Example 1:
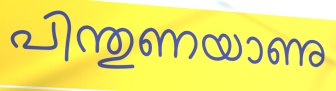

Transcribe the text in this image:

പിന്തുണയാണു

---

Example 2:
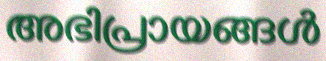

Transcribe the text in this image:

അഭിപ്രായങ്ങൾ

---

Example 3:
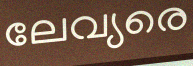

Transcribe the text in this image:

ലേവ്യരെ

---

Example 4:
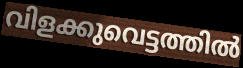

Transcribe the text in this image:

വിളക്കുവെട്ടത്തിൽ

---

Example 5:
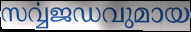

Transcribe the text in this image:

സൎവ്വജഡവുമായ